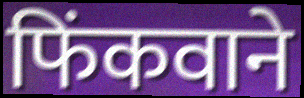
फिंकवाने